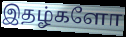
இதழ்களோ